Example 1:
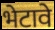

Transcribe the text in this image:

भेटावे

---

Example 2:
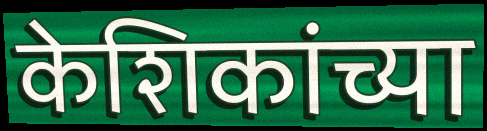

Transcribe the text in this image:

केशिकांच्या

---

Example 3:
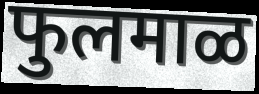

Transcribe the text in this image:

फुलमाळ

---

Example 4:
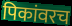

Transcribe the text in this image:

पिकांवरच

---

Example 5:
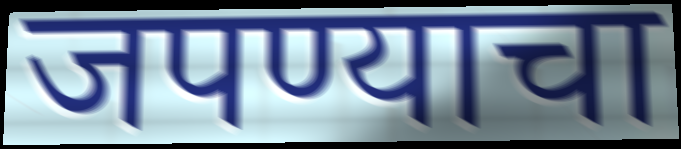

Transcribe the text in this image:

जपण्याचा